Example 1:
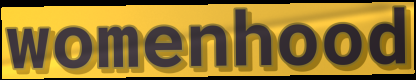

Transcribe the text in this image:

womenhood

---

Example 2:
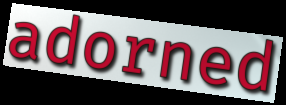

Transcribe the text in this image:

adorned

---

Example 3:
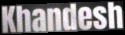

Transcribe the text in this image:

Khandesh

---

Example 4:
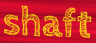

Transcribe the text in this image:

shaft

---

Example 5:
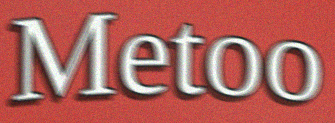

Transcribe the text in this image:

Metoo